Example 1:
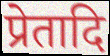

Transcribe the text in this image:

प्रेतादि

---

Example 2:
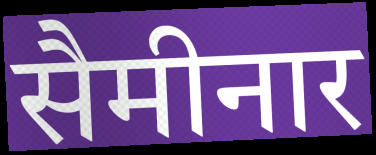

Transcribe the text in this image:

सैमीनार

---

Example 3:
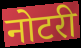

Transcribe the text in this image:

नोटरी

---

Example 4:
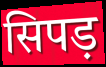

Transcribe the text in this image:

सिपड़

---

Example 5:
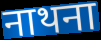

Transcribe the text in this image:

नाथना